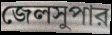
জেলসুপার